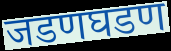
जडणघडण